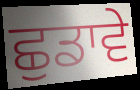
ਛੁਡਾਵੇ